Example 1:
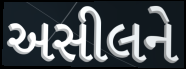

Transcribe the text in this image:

અસીલને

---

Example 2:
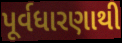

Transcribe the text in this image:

પૂર્વધારણાથી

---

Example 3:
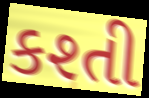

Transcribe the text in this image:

કશ્તી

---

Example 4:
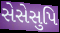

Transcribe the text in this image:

સેસેસુપિ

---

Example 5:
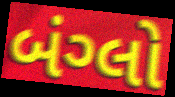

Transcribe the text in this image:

બંગ્લો